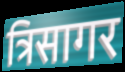
त्रिसागर